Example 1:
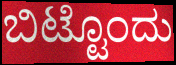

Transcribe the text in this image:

ಬಿಟ್ಟೊಂದು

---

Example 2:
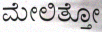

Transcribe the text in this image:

ಮೇಲಿತ್ತೋ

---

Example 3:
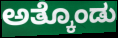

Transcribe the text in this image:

ಅತ್ಕೊಂಡು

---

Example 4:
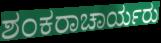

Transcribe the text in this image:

ಶಂಕರಾಚಾರ್ಯರು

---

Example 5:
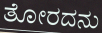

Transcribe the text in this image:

ತೋರದನು